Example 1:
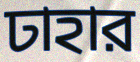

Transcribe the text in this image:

ঢাহার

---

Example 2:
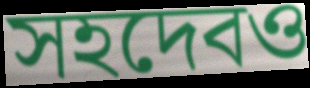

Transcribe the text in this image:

সহদেবও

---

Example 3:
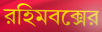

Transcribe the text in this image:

রহিমবক্সের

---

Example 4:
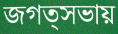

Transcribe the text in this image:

জগত্সভায়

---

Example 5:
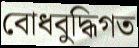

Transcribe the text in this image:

বোধবুদ্ধিগত